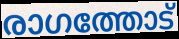
രാഗത്തോട്